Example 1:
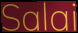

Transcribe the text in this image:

Salai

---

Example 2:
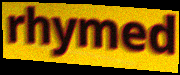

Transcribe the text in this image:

rhymed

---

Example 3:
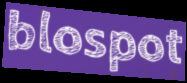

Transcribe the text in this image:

blospot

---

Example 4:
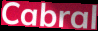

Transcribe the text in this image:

Cabral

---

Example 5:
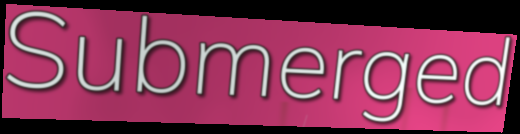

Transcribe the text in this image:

Submerged